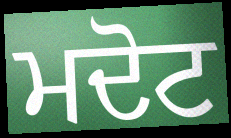
ਮਦੋਟ